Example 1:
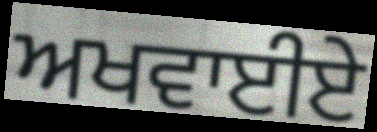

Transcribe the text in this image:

ਅਖਵਾਈਏ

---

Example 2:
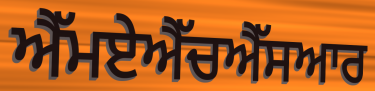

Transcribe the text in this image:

ਐੱਮਏਐੱਚਐੱਸਆਰ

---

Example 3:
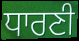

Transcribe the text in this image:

ਧਾਰਣੀ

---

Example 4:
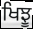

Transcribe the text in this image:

ਖਿਝੂ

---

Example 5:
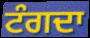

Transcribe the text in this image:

ਟੰਗਦਾ